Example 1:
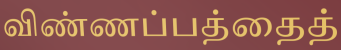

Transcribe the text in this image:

விண்ணப்பத்தைத்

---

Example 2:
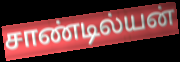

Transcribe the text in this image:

சாண்டில்யன்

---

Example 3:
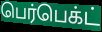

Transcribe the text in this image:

பெர்பெக்ட்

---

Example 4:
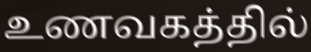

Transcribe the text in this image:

உணவகத்தில்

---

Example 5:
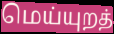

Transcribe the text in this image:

மெய்யுறத்